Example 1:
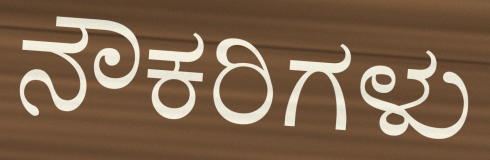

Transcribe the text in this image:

ನೌಕರಿಗಳು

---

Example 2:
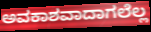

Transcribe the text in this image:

ಅವಕಾಶವಾದಾಗಲೆಲ್ಲ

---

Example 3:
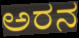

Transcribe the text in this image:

ಅರನ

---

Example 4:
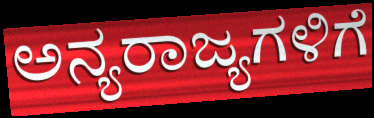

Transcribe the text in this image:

ಅನ್ಯರಾಜ್ಯಗಳಿಗೆ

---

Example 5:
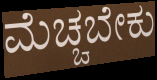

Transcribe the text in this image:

ಮೆಚ್ಚಬೇಕು